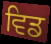
ਵਿਡ